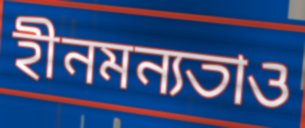
হীনমন্যতাও